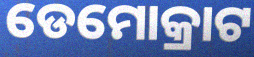
ଡେମୋକ୍ରାଟ